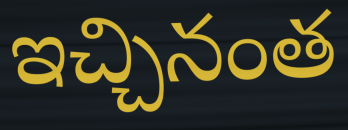
ఇచ్చినంత